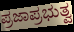
ಪ್ರಜಾಪ್ರಭುತ್ವ